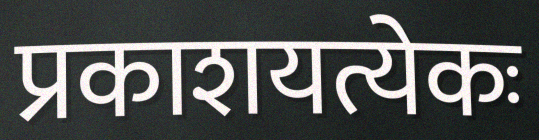
प्रकाशयत्येकः